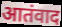
आतंवाद